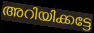
അറിയിക്കട്ടേ